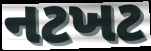
નટખટ